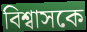
বিশ্বাসকে